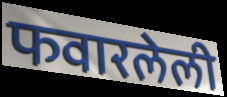
फवारलेली